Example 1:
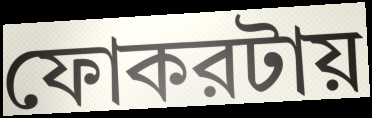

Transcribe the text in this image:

ফোকরটায়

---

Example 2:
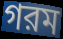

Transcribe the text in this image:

গরম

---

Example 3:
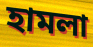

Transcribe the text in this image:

হামলা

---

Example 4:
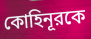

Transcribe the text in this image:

কোহিনূরকে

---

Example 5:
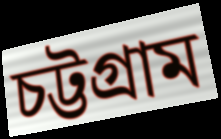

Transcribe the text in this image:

চট্টগ্রাম